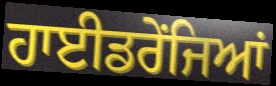
ਹਾਈਡਰੇਂਜਿਆਂ